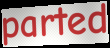
parted